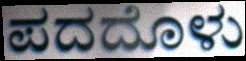
ಪದದೊಳು